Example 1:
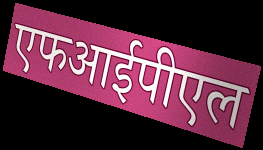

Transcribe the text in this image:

एफआईपीएल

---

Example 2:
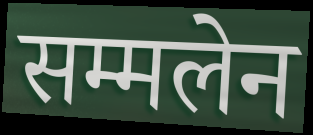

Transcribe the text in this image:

सम्मलेन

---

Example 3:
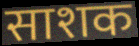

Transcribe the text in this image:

साशक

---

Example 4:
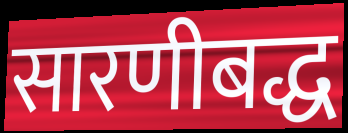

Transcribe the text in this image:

सारणीबद्ध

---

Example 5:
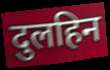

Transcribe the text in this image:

दुलहिन